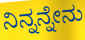
ನಿನ್ನನ್ನೇನು